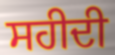
ਸਹੀਦੀ